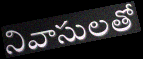
నివాసులతో